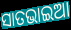
ସାତଭାଇଆ